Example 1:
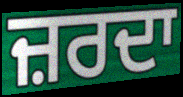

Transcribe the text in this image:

ਜ਼ਰਦਾ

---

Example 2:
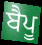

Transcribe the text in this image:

ਬੈਪੂ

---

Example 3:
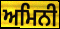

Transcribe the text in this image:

ਅਮਿਨੀ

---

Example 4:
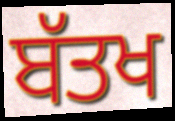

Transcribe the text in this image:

ਬੱਤਖ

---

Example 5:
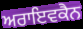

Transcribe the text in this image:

ਅਰਾਇਵਕੈਨ